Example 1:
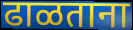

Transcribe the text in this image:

ढाळताना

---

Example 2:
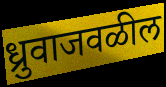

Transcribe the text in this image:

ध्रुवाजवळील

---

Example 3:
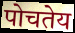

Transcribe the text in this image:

पोचतेय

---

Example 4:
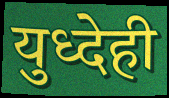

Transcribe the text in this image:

युध्देही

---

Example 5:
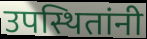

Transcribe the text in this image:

उपस्थितांनी